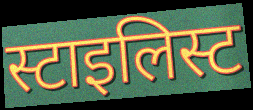
स्टाइलिस्ट